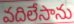
వదిలేసాను